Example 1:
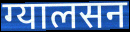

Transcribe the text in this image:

ग्यालसन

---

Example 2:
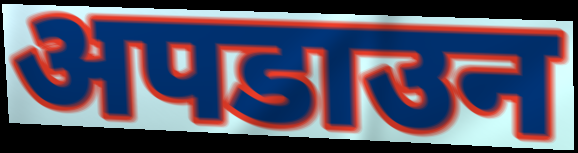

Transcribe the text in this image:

अपडाउन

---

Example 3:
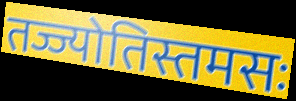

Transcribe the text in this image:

तज्ज्योतिस्तमसः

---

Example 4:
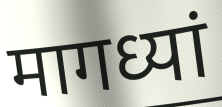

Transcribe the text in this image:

मागध्यां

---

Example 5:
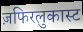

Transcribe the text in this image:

ज़फिरलुकास्ट